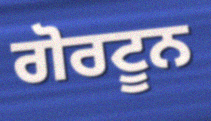
ਗੋਰਟੂਨ